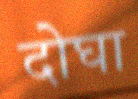
दोघा